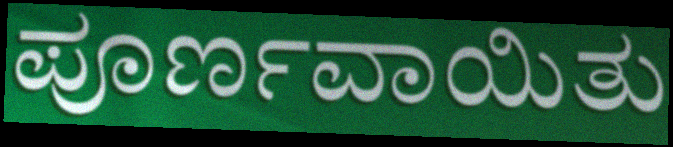
ಪೂರ್ಣವಾಯಿತು